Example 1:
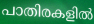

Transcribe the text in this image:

പാതിരകളിൽ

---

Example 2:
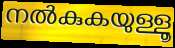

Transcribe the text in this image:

നൽകുകയുള്ളൂ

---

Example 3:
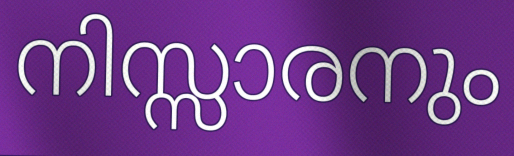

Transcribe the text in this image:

നിസ്സാരനും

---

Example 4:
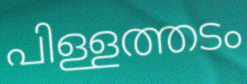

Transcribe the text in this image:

പിള്ളത്തടം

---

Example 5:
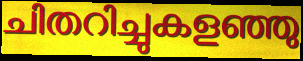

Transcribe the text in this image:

ചിതറിച്ചുകളഞ്ഞു